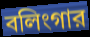
বলিংগার